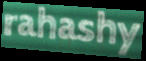
rahashy